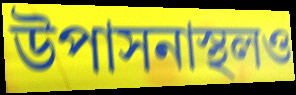
উপাসনাস্থলও